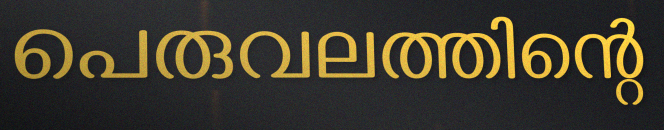
പെരുവലത്തിന്റെ